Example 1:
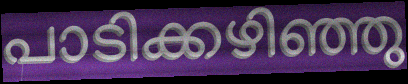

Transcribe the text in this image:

പാടിക്കഴിഞ്ഞു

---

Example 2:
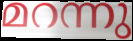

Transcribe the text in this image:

മറന്നു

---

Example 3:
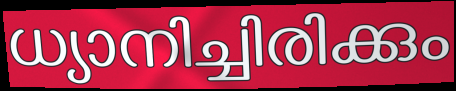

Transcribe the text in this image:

ധ്യാനിച്ചിരിക്കും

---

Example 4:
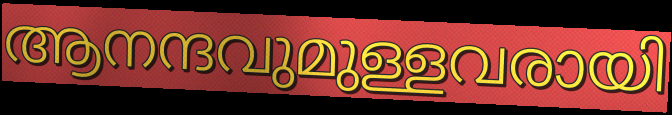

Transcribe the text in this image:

ആനന്ദവുമുള്ളവരായി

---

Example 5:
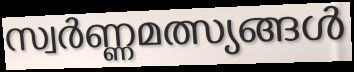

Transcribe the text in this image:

സ്വർണ്ണമത്സ്യങ്ങൾ